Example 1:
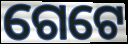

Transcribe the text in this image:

ଗେଟେ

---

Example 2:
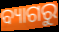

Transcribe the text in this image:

ବ୍ୟାଗରୁ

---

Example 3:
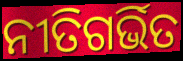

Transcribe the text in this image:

ନୀତିଗର୍ଭିତ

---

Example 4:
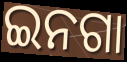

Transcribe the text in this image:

ଇନଗା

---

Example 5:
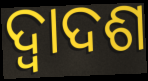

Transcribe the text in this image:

ଦ୍ୱାଦଶ